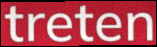
treten